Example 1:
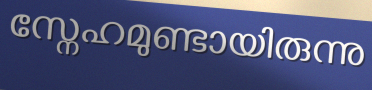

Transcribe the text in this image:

സ്നേഹമുണ്ടായിരുന്നു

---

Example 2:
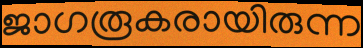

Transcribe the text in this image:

ജാഗരൂകരായിരുന്ന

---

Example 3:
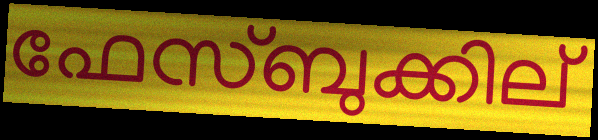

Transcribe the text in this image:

ഫേസ്ബുക്കില്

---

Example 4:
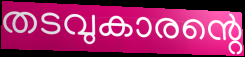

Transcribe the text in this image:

തടവുകാരന്റെ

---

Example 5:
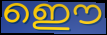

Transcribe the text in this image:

ഇൌ